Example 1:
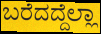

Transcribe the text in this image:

ಬರೆದದ್ದೆಲ್ಲಾ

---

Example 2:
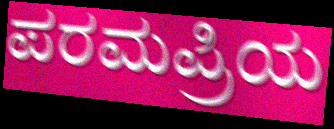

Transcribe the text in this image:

ಪರಮಪ್ರಿಯ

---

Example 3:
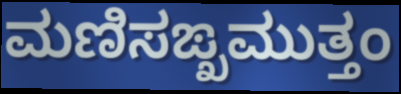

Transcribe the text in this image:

ಮಣಿಸಙ್ಖಮುತ್ತಂ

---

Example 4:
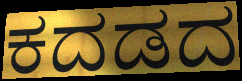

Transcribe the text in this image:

ಕದಡದ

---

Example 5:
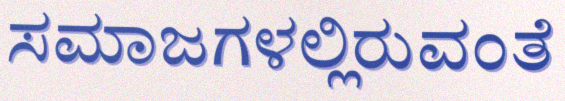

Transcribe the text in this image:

ಸಮಾಜಗಳಲ್ಲಿರುವಂತೆ